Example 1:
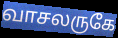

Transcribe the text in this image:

வாசலருகே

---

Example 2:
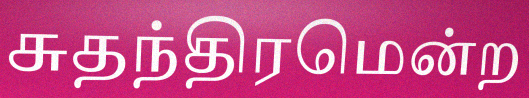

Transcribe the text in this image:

சுதந்திரமென்ற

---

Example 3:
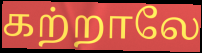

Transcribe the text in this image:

கற்றாலே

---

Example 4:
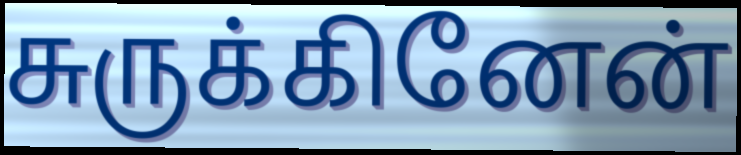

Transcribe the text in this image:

சுருக்கினேன்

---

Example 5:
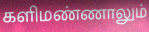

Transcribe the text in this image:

களிமண்ணாலும்